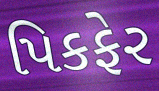
પિકફેર